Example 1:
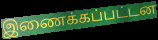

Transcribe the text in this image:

இணைக்கப்பட்டன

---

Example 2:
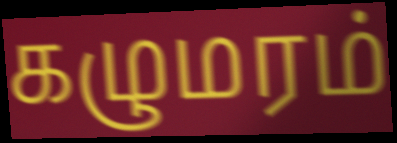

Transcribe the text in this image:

கழுமரம்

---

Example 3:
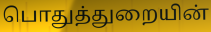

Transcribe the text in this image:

பொதுத்துறையின்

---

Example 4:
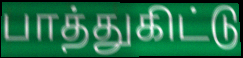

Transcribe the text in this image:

பாத்துகிட்டு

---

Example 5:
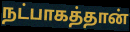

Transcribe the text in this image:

நட்பாகத்தான்